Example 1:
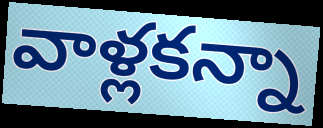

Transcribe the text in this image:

వాళ్లకన్నా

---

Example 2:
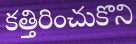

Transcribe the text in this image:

కత్తిరించుకొని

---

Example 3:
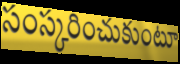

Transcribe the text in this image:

సంస్కరించుకుంటూ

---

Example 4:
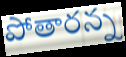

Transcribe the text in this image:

పోతారన్న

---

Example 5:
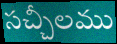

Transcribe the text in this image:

సచ్చీలము